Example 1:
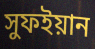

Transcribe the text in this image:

সুফইয়ান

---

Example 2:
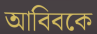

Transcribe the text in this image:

আবিবকে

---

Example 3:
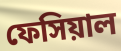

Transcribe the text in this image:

ফেসিয়াল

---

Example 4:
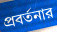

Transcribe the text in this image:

প্রবর্তনার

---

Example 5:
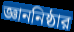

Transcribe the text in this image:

জ্ঞাননিষ্ঠার